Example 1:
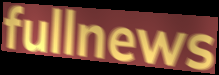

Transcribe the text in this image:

fullnews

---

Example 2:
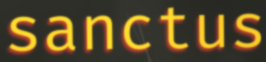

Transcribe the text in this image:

sanctus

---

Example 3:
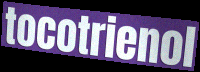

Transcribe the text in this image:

tocotrienol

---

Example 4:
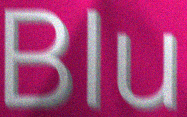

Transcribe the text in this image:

Blu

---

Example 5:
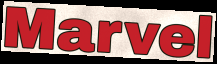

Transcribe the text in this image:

Marvel